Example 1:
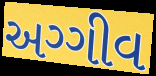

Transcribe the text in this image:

અગ્ગીવ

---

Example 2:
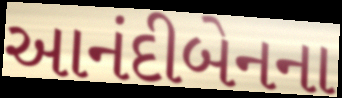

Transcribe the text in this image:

આનંદીબેનના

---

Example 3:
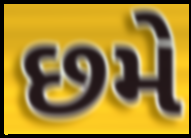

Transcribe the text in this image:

છમે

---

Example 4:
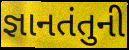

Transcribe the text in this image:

જ્ઞાનતંતુની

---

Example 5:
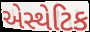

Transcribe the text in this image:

એસ્થેટિક